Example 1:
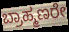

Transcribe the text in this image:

ಬ್ರಾಹ್ಮಣರೇ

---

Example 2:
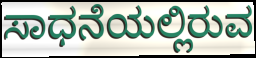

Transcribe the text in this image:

ಸಾಧನೆಯಲ್ಲಿರುವ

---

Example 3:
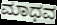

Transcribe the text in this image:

ಮಾಧವ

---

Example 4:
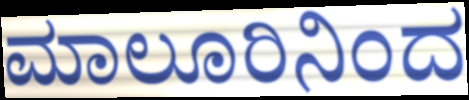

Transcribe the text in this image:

ಮಾಲೂರಿನಿಂದ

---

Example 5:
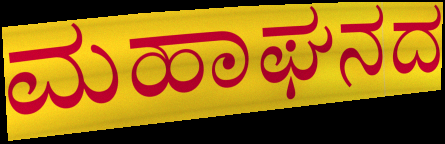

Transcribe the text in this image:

ಮಹಾಘನದ